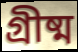
গ্ৰীষ্ম